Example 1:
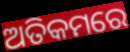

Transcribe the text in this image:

ଅତିକମରେ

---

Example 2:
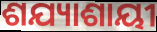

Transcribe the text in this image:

ଶଯ୍ୟାଶାୟୀ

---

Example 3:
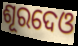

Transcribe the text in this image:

ଶୂରଦେଓ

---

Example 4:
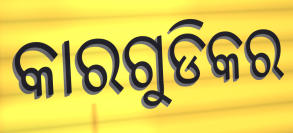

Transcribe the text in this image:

କାରଗୁଡିକର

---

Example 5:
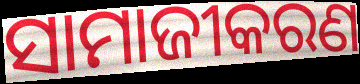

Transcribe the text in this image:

ସାମାଜୀକରଣ